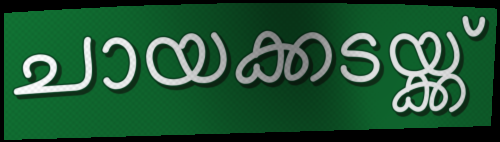
ചായക്കടയ്ക്ക്